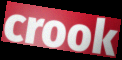
crook